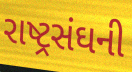
રાષ્ટ્રસંઘની